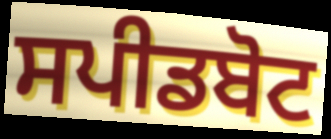
ਸਪੀਡਬੋਟ